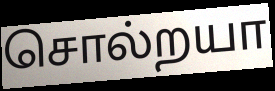
சொல்றயா